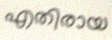
എതിരായ